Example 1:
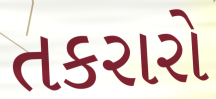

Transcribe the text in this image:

તકરારો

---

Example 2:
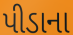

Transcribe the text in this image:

પીડાના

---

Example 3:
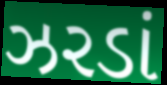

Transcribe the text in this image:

ઝરડાં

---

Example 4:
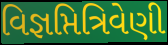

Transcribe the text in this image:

વિજ્ઞપ્તિત્રિવેણી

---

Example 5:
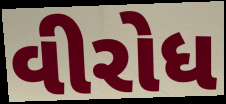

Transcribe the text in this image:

વીરોધ